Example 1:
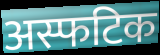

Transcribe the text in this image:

अस्फटिक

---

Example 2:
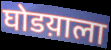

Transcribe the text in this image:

घोडय़ाला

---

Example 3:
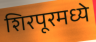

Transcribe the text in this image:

शिरपूरमध्ये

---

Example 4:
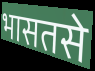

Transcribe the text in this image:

भासतसे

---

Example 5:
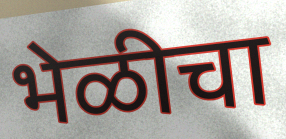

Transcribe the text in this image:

भेळीचा